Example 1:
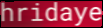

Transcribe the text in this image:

hridaye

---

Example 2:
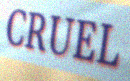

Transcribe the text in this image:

CRUEL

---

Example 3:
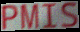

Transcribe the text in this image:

PMIS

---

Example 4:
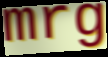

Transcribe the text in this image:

mrg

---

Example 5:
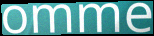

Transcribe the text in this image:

omme